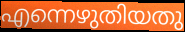
എന്നെഴുതിയതു